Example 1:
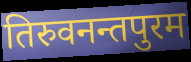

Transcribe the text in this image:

तिरुवनन्तपुरम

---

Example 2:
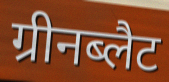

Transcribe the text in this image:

ग्रीनब्लैट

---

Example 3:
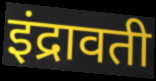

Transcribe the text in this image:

इंद्रावती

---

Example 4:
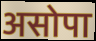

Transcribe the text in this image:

असोपा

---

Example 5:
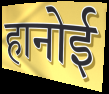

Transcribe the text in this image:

हानोई